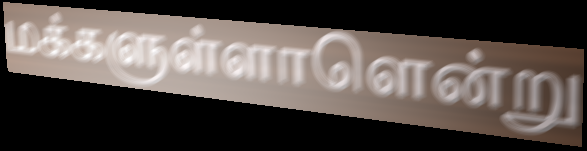
மக்களுள்ளாளென்று